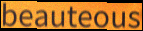
beauteous